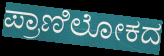
ಪ್ರಾಣಿಲೋಕದ